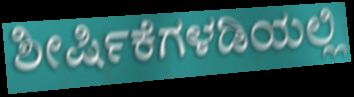
ಶೀರ್ಷಿಕೆಗಳಡಿಯಲ್ಲಿ